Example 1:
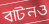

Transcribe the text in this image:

বাটনও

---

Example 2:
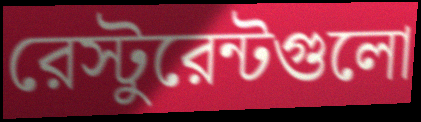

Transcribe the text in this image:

রেস্টুরেন্টগুলো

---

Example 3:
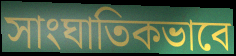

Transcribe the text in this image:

সাংঘাতিকভাবে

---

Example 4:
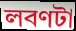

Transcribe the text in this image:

লবণটা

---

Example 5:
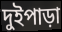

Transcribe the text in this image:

দুইপাড়া